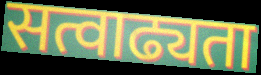
सत्वाढ्यता